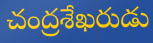
చంద్రశేఖరుడు